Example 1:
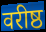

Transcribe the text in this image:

वरीष्ठ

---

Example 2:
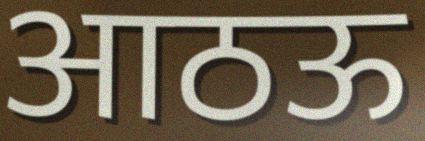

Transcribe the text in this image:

आठऊ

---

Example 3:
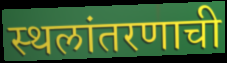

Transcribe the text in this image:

स्थलांतरणाची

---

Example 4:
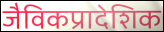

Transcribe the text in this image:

जैविकप्रादेशिक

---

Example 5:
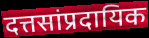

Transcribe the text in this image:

दत्तसांप्रदायिक